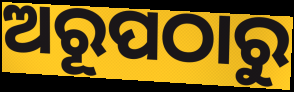
ଅରୂପଠାରୁ